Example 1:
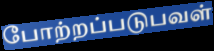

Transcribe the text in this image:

போற்றப்படுபவள்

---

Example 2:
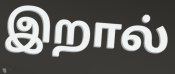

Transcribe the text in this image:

இறால்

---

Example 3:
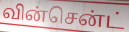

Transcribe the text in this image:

வின்சென்ட்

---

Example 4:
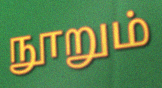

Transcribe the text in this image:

நூறும்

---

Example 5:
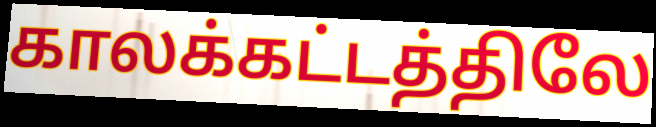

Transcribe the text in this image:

காலக்கட்டத்திலே